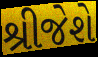
શ્રીજેશે